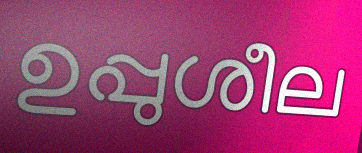
ഉപ്പുശീല